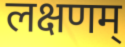
लक्षणम्